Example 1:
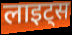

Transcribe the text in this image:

लाइट्स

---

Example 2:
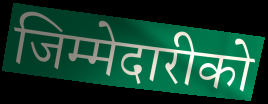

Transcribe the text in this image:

जिम्मेदारीको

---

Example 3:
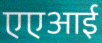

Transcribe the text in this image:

एएआई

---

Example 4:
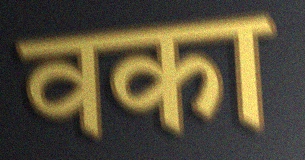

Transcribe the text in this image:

वका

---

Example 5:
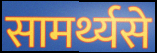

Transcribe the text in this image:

सामर्थ्यसे